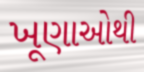
ખૂણાઓથી